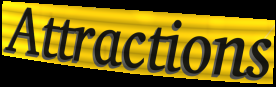
Attractions